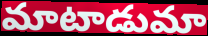
మాటాడుమా